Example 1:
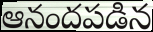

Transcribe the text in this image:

ఆనందపడిన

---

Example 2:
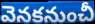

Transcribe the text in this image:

వెనకనుంచీ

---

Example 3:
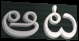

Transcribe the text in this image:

ఆట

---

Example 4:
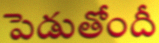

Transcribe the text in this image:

పెడుతోందీ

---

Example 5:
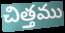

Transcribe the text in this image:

చిత్తము